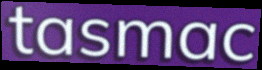
tasmac